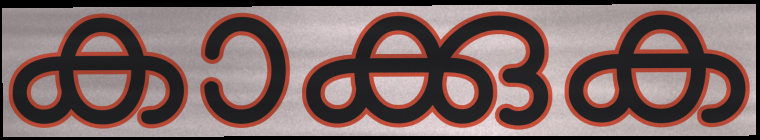
കാക്കുക